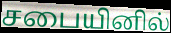
சபையினில்